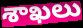
శాఖలు